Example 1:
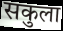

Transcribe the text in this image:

सकुला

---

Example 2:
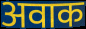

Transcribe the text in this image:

अवाक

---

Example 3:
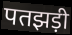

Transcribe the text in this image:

पतझड़ी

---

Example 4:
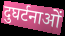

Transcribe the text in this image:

दुघर्टनाओं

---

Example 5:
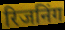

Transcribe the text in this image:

रिजनिंग